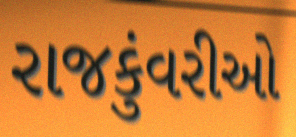
રાજકુંવરીઓ